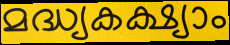
മദ്ധ്യകക്ഷ്യാം